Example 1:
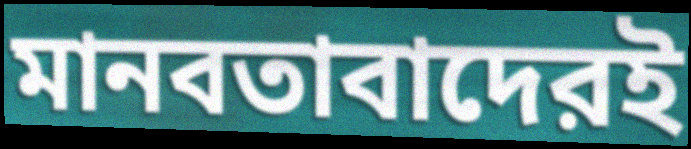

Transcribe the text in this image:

মানবতাবাদেরই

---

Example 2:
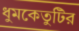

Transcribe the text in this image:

ধুমকেতুটির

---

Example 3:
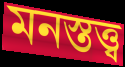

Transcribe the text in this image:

মনস্তত্ত্ব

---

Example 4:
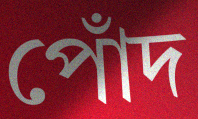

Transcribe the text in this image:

পোঁদ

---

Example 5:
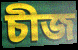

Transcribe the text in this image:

চীজ